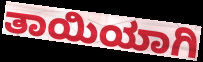
ತಾಯಿಯಾಗಿ